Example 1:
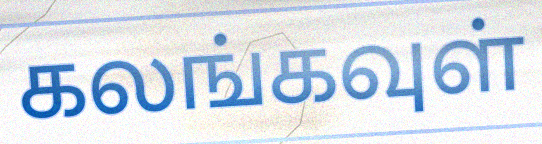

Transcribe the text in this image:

கலங்கவுள்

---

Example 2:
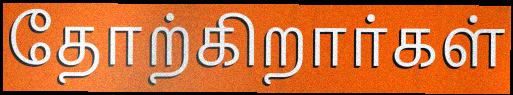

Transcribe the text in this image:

தோற்கிறார்கள்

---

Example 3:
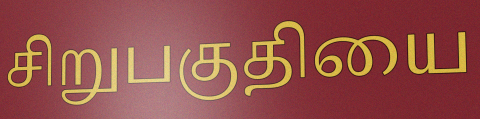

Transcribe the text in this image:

சிறுபகுதியை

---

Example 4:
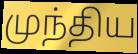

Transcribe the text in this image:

முந்திய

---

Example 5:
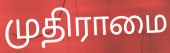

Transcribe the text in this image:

முதிராமை